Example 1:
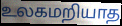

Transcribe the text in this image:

உலகமறியாத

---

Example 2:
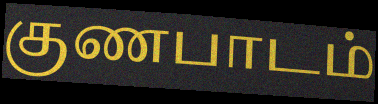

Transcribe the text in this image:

குணபாடம்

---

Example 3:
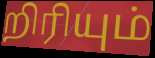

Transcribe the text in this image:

றிரியும்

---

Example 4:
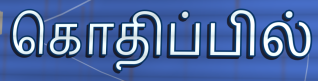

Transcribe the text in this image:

கொதிப்பில்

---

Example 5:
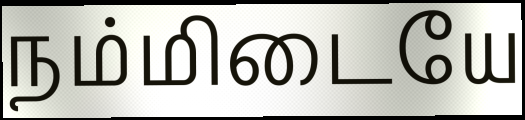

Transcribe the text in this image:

நம்மிடையே